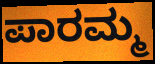
ಪಾರಮ್ಮ